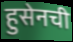
हुसेनची